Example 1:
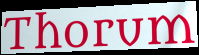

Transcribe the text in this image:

Thorum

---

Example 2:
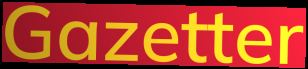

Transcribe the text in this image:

Gazetter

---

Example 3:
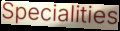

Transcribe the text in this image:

Specialities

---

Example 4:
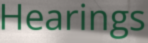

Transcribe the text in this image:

Hearings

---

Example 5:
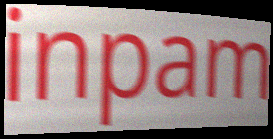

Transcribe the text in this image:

inpam